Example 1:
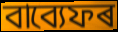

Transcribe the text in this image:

বাব্যেফৰ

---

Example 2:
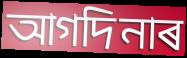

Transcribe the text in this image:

আগদিনাৰ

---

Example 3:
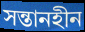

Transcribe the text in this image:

সন্তানহীন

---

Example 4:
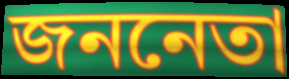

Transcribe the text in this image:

জননেতা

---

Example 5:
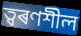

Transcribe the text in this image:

ত্বৰণশীল